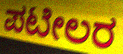
ಪಟೇಲರ